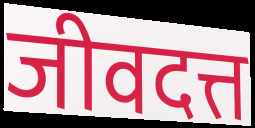
जीवदत्त